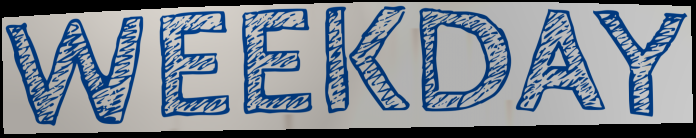
WEEKDAY